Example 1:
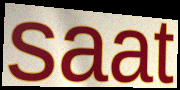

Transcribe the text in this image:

saat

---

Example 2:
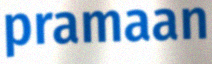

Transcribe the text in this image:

pramaan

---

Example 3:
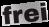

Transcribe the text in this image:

frei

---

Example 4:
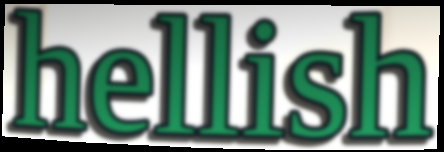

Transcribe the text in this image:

hellish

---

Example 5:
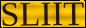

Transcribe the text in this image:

SLIIT